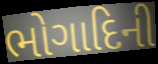
ભોગાદિની